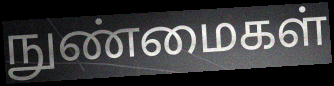
நுண்மைகள்